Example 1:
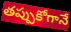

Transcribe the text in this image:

తప్పుకోగానే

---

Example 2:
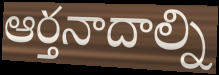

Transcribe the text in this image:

ఆర్తనాదాల్ని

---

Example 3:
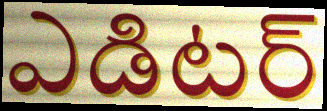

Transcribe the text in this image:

ఎడిటర్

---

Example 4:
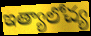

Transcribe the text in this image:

ఇత్యాలోచ్య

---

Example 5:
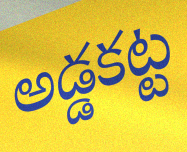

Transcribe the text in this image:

అడ్డకట్ట